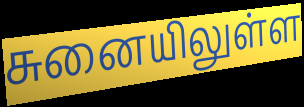
சுனையிலுள்ள